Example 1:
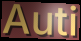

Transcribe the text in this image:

Auti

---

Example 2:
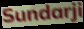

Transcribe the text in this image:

Sundarji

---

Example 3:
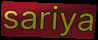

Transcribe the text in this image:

sariya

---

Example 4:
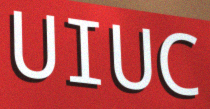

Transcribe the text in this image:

UIUC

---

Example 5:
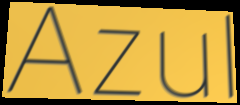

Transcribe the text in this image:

Azul